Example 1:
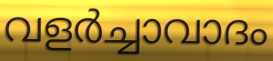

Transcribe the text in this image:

വളർച്ചാവാദം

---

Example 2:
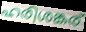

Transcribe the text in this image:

ഹരിശങ്കര്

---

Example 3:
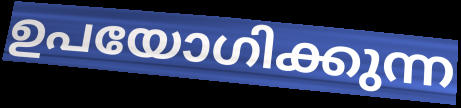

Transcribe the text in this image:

ഉപയോഗിക്കുന്ന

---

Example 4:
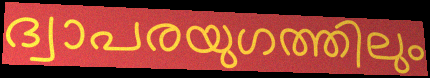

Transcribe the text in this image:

ദ്വാപരയുഗത്തിലും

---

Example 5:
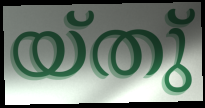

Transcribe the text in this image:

യ്തു്